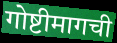
गोष्टीमागची